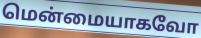
மென்மையாகவோ